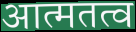
आत्मतत्व